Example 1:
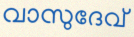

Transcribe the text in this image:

വാസുദേവ്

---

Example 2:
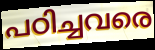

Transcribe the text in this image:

പഠിച്ചവരെ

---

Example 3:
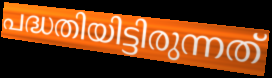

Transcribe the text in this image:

പദ്ധതിയിട്ടിരുന്നത്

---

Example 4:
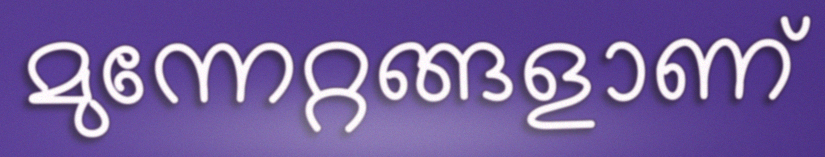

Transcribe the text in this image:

മുന്നേറ്റങ്ങളാണ്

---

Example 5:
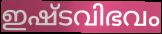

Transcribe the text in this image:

ഇഷ്ടവിഭവം